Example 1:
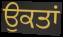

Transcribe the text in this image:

ਉਕਤਾਂ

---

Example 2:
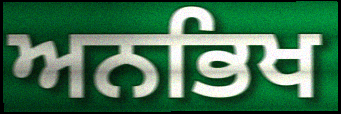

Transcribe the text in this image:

ਅਨਭਿਖ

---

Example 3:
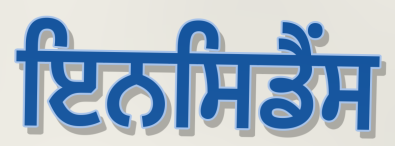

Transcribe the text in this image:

ਇਨਸਿਡੈਂਸ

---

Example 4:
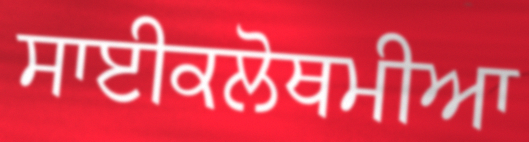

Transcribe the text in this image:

ਸਾਈਕਲੋਥਮੀਆ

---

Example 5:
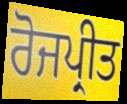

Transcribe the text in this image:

ਰੋਜਪ੍ਰੀਤ